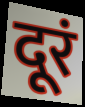
दूरं